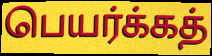
பெயர்க்கத்